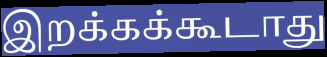
இறக்கக்கூடாது